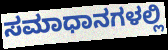
ಸಮಾಧಾನಗಳಲ್ಲಿ